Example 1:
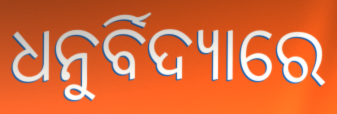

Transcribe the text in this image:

ଧନୁର୍ବିଦ୍ୟାରେ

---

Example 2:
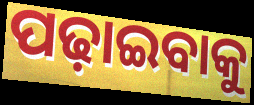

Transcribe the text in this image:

ପଢ଼ାଇବାକୁ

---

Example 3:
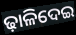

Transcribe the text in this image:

ଢ଼ାଳିଦେଇ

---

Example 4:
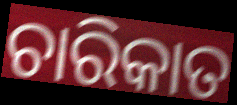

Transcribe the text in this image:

ଚାରିକାତ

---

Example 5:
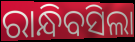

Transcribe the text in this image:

ରାନ୍ଧିବସିଲା